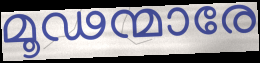
മൂഢന്മാരേ